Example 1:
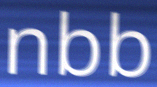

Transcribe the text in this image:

nbb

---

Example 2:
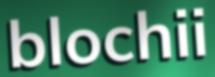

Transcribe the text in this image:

blochii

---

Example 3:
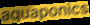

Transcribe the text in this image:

aquaponics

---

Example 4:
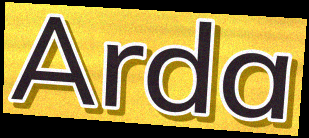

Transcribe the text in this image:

Arda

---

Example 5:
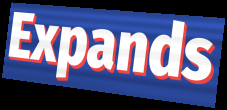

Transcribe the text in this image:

Expands